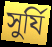
সুর্যি